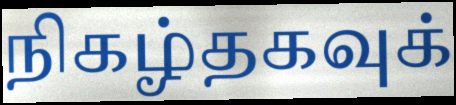
நிகழ்தகவுக்